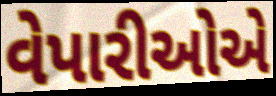
વેપારીઓએ